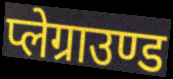
प्लेग्राउण्ड